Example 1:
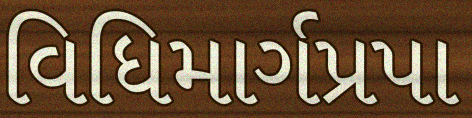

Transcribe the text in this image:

વિધિમાર્ગપ્રપા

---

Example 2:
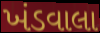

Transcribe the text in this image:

ખંડવાલા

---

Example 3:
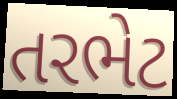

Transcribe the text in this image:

તરભેટ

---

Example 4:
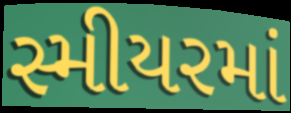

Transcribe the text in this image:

સ્મીયરમાં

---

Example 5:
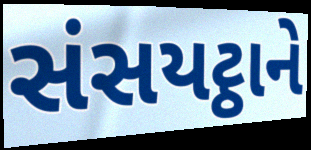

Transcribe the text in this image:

સંસયટ્ઠાને